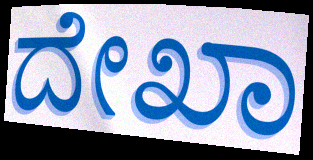
ದೇಖಾ